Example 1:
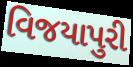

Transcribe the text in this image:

વિજયાપુરી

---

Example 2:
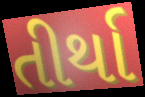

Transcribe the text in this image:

તીર્થા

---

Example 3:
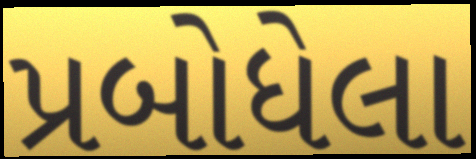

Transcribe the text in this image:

પ્રબોધેલા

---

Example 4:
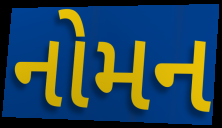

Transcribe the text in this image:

નોમન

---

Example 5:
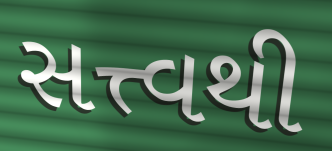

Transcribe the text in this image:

સત્ત્વથી